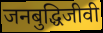
जनबुद्धिजीवी